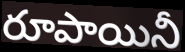
రూపాయినీ